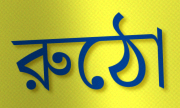
রুঠো